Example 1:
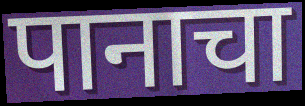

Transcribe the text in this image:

पानाचा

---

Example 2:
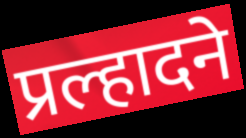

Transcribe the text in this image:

प्रल्हादने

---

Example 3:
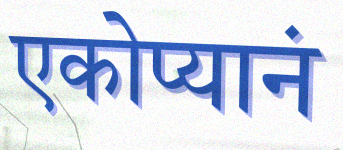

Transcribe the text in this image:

एकोप्यानं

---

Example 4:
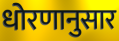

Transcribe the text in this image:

धोरणानुसार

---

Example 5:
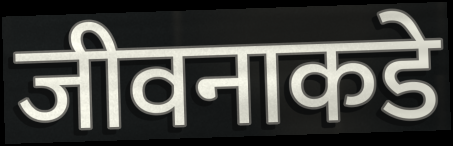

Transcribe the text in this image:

जीवनाकडे